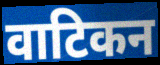
वाटिकन